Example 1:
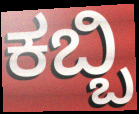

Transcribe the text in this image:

ಕಬ್ಬಿ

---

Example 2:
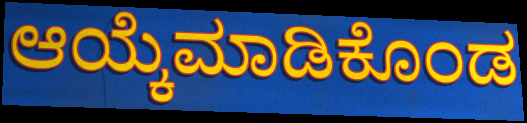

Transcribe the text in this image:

ಆಯ್ಕೆಮಾಡಿಕೊಂಡ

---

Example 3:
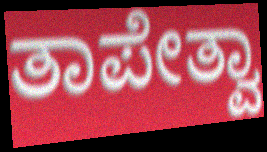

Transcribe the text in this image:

ತಾಪೇತ್ವಾ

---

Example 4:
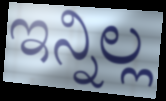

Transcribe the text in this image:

ಇನ್ನಿಲ್ಲ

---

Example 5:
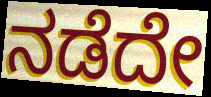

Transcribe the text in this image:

ನಡೆದೇ